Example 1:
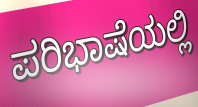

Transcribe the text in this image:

ಪರಿಭಾಷೆಯಲ್ಲಿ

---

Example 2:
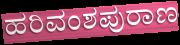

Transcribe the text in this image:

ಹರಿವಂಶಪುರಾಣ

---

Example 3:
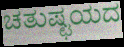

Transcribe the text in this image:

ಚತುಷ್ಟಯದ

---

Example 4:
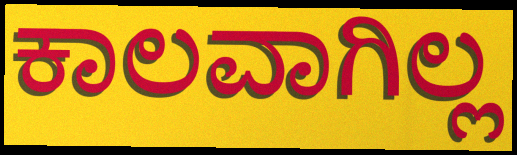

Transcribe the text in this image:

ಕಾಲವಾಗಿಲ್ಲ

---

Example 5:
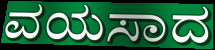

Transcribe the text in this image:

ವಯಸಾದ